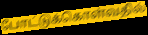
போட்டுக்கொள்வதில்